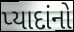
પ્યાદાંનો